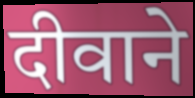
दीवाने